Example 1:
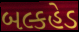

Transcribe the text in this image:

બલ્કહેડ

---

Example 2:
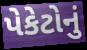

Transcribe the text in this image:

પેકેટોનું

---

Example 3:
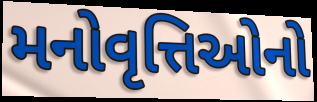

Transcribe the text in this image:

મનોવૃત્તિઓનો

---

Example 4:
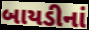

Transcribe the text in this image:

બાયડીનાં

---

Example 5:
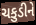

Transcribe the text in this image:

ચકુડીને